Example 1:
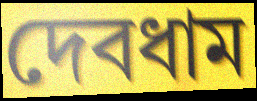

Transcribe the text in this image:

দেবধাম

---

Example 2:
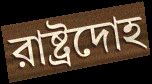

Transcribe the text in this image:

রাষ্ট্রদোহ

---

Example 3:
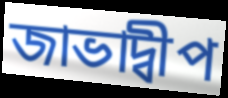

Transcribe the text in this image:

জাভাদ্বীপ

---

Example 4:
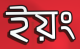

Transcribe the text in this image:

ইয়ং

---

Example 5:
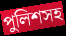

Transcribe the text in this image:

পুলিশসহ